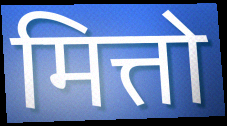
मित्तो